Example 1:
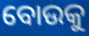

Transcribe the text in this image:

ବୋଉକୁ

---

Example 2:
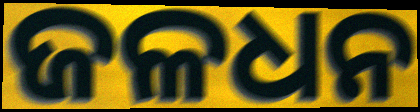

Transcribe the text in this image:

ଜଳଧନ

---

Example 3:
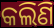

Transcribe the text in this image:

କଲିଣି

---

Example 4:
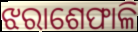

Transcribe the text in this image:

ଝରାଶେଫାଳି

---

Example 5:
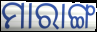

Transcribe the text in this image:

ମାରାଙ୍ଗ